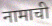
नामाची